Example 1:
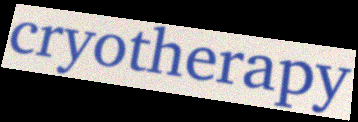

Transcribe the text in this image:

cryotherapy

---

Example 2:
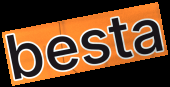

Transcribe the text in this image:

besta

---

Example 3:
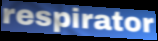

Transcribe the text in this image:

respirator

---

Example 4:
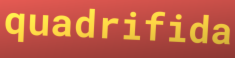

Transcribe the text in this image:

quadrifida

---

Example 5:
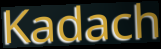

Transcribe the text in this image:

Kadach